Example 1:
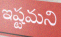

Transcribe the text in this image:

ఇష్టమని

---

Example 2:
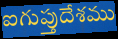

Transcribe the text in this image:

ఐగుప్తుదేశము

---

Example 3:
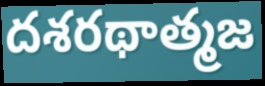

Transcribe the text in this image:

దశరథాత్మజ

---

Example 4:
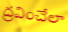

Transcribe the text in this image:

ద్రవించేలా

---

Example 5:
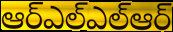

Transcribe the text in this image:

ఆర్ఎల్ఎల్ఆర్